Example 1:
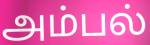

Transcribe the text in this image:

அம்பல்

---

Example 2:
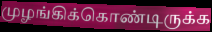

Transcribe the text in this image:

முழங்கிக்கொண்டிருக்க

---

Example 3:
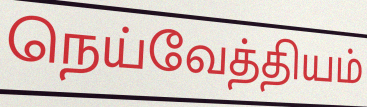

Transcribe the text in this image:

நெய்வேத்தியம்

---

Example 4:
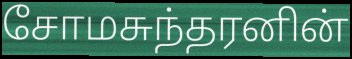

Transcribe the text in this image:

சோமசுந்தரனின்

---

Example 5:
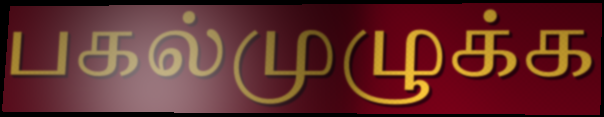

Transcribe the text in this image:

பகல்முழுக்க